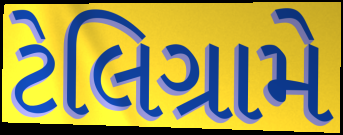
ટેલિગ્રામે